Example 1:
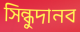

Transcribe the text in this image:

সিন্ধুদানব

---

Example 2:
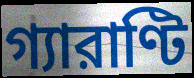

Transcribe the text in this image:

গ্যারাণ্টি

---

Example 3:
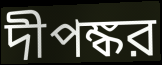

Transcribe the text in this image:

দীপঙ্কর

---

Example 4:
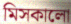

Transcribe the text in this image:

মিসকালো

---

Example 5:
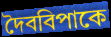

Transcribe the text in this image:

দৈববিপাকে